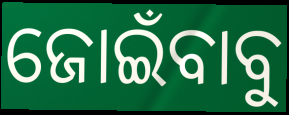
ଜୋଇଁବାବୁ